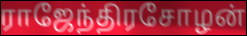
ராஜேந்திரசோழன்